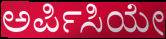
ಅರ್ಪಿಸಿಯೇ